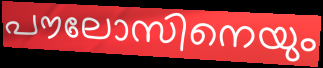
പൗലോസിനെയും